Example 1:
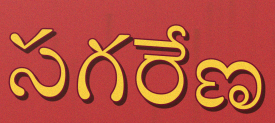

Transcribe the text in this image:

సగరేణ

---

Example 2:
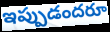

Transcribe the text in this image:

ఇప్పుడందరూ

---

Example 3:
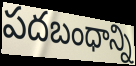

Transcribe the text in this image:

పదబంధాన్ని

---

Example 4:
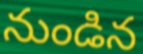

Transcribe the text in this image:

నుండిన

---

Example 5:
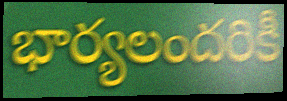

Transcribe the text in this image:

భార్యలందరికీ